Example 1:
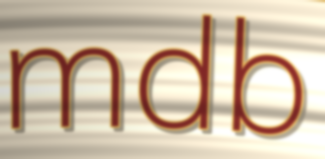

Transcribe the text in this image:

mdb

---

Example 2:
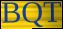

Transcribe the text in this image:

BQT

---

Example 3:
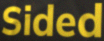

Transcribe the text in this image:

Sided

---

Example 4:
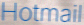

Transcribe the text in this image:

Hotmail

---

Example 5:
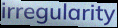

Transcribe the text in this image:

irregularity